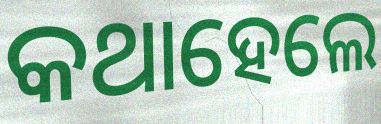
କଥାହେଲେ